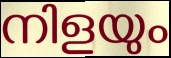
നിളയും